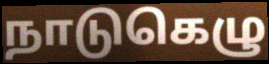
நாடுகெழு